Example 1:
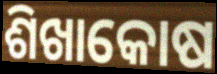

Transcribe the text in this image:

ଶିଖାକୋଷ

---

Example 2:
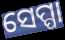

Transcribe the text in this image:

ସେପ୍ପା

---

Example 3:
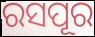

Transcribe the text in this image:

ରସପୂର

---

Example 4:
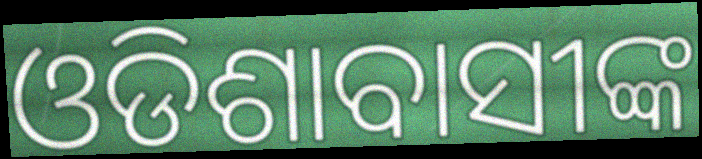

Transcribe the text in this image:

ଓଡିଶାବାସୀଙ୍କ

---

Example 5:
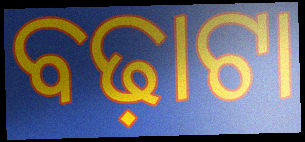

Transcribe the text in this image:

ବଢ଼ାଟା